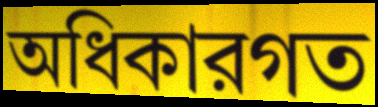
অধিকারগত